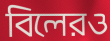
বিলেরও